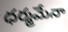
ధర్మమేనా